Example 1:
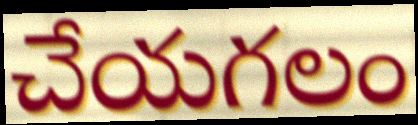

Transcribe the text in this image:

చేయగలం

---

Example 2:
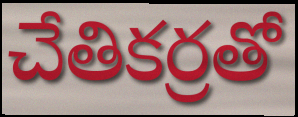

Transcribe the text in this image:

చేతికర్రతో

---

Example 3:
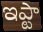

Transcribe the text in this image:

ఇప్టా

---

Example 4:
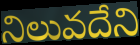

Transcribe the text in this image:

నిలువదేని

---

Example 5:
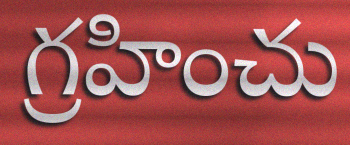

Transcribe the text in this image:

గ్రహించు